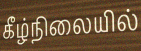
கீழ்நிலையில்